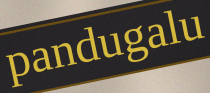
pandugalu